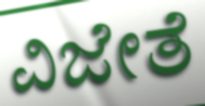
ವಿಜೇತೆ